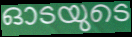
ഓടയുടെ